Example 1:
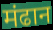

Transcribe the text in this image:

मंढान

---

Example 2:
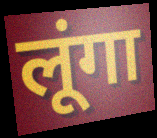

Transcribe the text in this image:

लूंगा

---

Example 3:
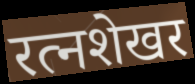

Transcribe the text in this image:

रत्नशेखर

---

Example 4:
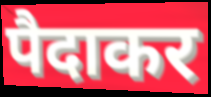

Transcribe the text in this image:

पैदाकर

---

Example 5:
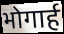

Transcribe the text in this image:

भोगार्ह